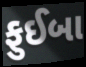
ફુઈબા